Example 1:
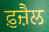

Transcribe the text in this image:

ਫ਼ੁਜ਼ੈਲ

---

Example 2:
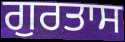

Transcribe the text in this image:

ਗੁਰਤਾਸ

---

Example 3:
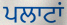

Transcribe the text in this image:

ਪਲਾਟਾਂ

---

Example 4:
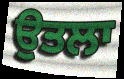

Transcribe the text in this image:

ਉਤਲਾ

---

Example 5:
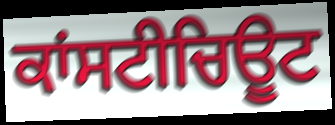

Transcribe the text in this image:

ਕਾਂਸਟੀਚਿਊਟ